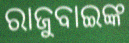
ରାଜୁବାଇଙ୍କ